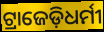
ଟ୍ରାଜେଡ଼ିଧର୍ମୀ